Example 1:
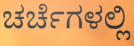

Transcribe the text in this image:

ಚರ್ಚೆಗಳಲ್ಲಿ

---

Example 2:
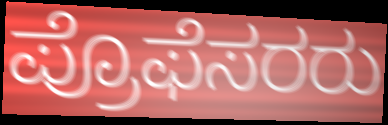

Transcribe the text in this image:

ಪ್ರೊಫೆಸರರು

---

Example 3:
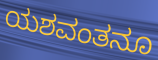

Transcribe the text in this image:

ಯಶವಂತನೂ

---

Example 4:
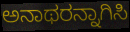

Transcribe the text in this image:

ಅನಾಥರನ್ನಾಗಿಸಿ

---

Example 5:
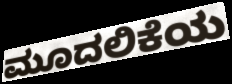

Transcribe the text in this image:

ಮೂದಲಿಕೆಯ